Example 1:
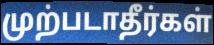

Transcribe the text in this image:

முற்படாதீர்கள்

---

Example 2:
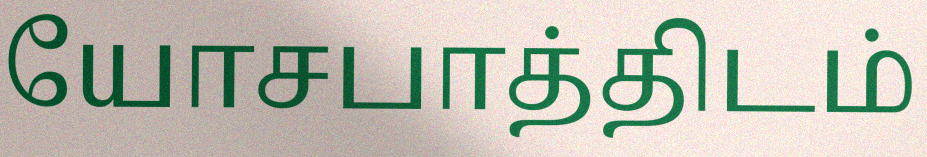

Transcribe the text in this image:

யோசபாத்திடம்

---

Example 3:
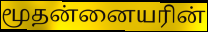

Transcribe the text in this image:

மூதன்னையரின்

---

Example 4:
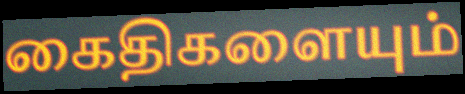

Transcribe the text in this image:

கைதிகளையும்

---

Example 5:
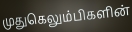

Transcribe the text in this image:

முதுகெலும்பிகளின்